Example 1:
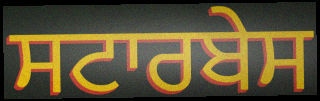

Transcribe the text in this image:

ਸਟਾਰਬੇਸ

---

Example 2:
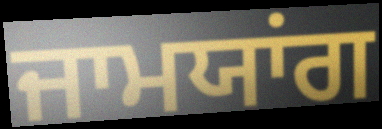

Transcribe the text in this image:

ਜਾਮਯਾਂਗ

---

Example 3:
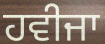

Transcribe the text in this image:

ਹਵੀਜਾ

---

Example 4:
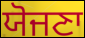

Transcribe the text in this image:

ਯੋਜਣਾ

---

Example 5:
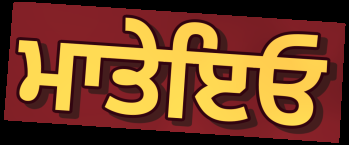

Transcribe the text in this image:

ਮਾਤੇਇਓ